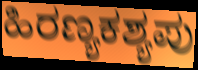
ಹಿರಣ್ಯಕಶ್ಯಪು